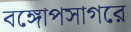
বঙ্গোপসাগরে